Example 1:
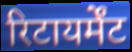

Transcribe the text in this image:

रिटायर्मेंट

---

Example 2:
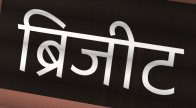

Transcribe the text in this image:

ब्रिजीट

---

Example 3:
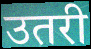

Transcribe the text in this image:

उतरी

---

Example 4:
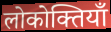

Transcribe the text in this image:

लोकोक्तियाँ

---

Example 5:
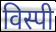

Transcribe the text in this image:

विस्पी